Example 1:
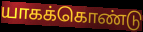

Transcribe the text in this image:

யாகக்கொண்டு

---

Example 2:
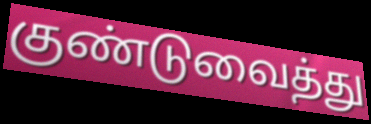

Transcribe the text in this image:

குண்டுவைத்து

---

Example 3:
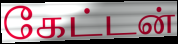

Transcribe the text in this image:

கேட்டன்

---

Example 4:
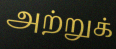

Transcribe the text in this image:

அற்றுக்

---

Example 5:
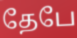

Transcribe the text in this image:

தேபே